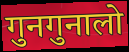
गुनगुनालो